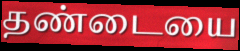
தண்டையை